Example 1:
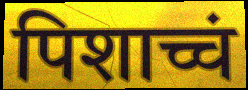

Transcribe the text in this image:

पिशाच्चं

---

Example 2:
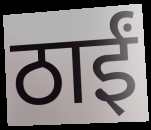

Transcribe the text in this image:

ठाईं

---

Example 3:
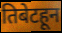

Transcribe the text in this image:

तिबेटहून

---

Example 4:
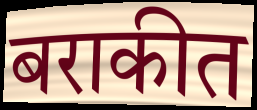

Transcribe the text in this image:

बराकीत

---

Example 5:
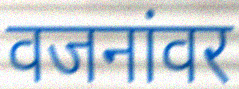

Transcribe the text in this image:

वजनांवर